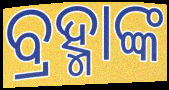
ବ୍ରହ୍ମାଙ୍କ